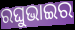
ରଘୁଭାଇର